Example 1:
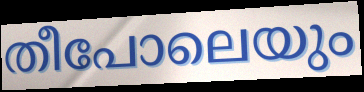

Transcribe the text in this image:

തീപോലെയും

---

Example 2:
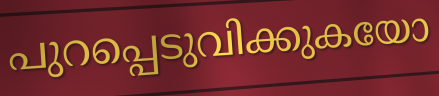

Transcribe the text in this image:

പുറപ്പെടുവിക്കുകയോ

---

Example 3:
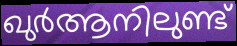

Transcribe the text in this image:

ഖുർആനിലുണ്ട്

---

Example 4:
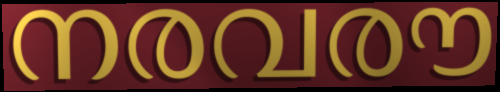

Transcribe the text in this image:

നരവരൗ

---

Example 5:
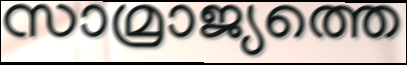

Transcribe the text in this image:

സാമ്രാജ്യത്തെ